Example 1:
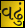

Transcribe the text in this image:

વઢું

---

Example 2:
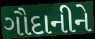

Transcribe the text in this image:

ગૌદાનીને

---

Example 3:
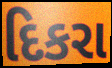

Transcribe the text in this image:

દિકરા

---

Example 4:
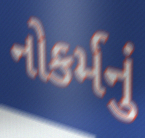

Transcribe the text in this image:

નોકર્મનું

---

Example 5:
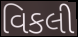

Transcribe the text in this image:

વિકલી